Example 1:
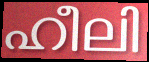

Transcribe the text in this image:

ഹീലി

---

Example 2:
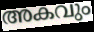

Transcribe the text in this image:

അകവും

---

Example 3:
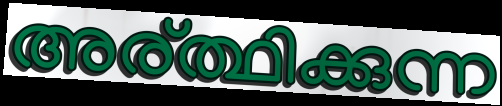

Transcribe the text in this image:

അര്ത്ഥിക്കുന്ന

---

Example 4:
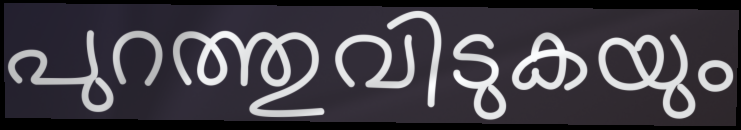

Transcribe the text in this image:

പുറത്തുവിടുകയും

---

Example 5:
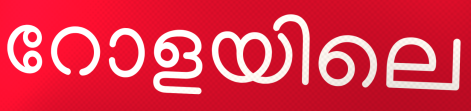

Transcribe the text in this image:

റോളയിലെ